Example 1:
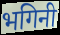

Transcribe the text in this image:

भगिनी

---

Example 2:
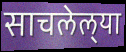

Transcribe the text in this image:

साचलेल्या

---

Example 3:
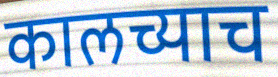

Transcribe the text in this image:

कालच्याच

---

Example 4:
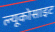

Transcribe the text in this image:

ल्यूकोसाइट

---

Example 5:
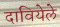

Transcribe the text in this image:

दावियेले